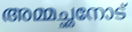
അമ്മച്ഛനോട്